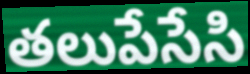
తలుపేసేసి